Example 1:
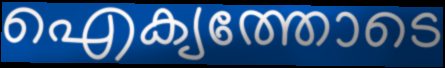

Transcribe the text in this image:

ഐക്യത്തോടെ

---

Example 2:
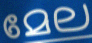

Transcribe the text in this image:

മേല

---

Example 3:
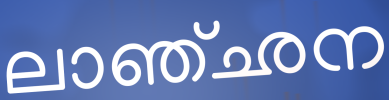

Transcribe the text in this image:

ലാഞ്ഛന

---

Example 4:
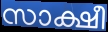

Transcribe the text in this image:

സാക്ഷീ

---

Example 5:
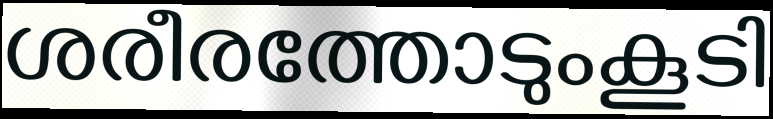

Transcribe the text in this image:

ശരീരത്തോടുംകൂടി